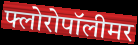
फ्लोरोपॉलीमर